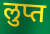
लुप्त